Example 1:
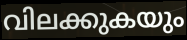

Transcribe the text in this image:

വിലക്കുകയും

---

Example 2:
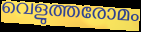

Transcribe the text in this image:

വെളുത്തരോമം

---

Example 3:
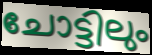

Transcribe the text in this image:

ചോട്ടിലും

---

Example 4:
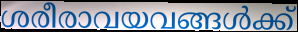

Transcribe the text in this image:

ശരീരാവയവങ്ങൾക്ക്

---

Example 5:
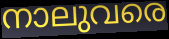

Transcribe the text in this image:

നാലുവരെ